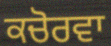
ਕਚੋਰਵਾ